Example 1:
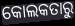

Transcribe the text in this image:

କୋଲକତାରୁ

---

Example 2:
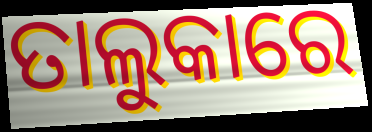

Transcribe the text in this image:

ତାଲୁକାରେ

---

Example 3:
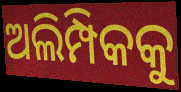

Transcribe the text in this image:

ଅଲିମ୍ପିକକୁ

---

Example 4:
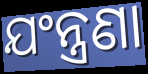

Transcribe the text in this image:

ଯଂନ୍ତ୍ରଣା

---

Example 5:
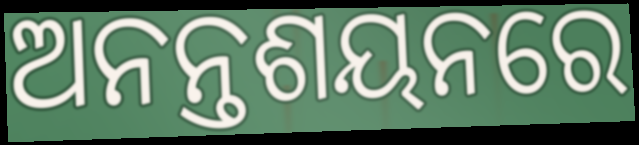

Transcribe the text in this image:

ଅନନ୍ତଶୟନରେ